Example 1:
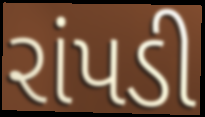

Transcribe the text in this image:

રાંપડી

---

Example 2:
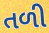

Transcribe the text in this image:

તળી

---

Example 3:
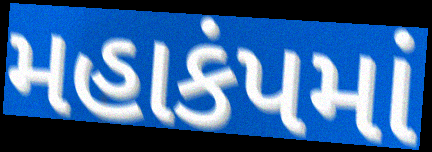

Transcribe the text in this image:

મહાકંપમાં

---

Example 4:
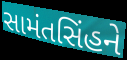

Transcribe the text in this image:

સામંતસિંહને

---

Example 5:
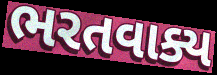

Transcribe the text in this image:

ભરતવાક્ય